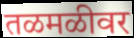
तळमळीवर